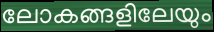
ലോകങ്ങളിലേയും